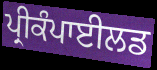
ਪ੍ਰੀਕੰਪਾਈਲਡ